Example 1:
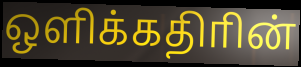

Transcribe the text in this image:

ஒளிக்கதிரின்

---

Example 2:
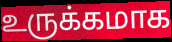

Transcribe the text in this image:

உருக்கமாக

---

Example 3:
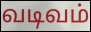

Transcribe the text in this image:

வடிவம்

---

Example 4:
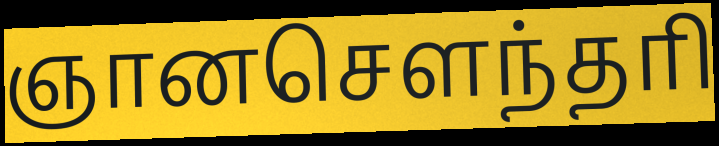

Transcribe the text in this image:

ஞானசெளந்தரி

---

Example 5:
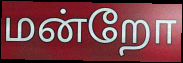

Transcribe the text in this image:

மன்றோ